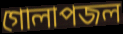
গোলাপজল